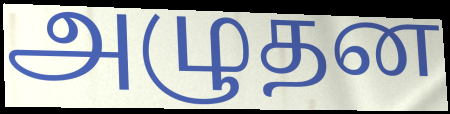
அழுதன